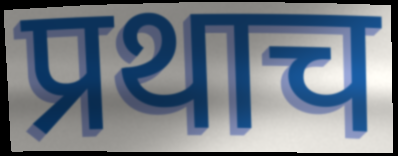
प्रथाच